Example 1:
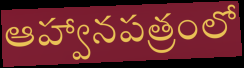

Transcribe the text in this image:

ఆహ్వానపత్రంలో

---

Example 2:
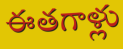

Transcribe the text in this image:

ఈతగాళ్లు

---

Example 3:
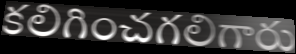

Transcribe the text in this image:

కలిగించగలిగారు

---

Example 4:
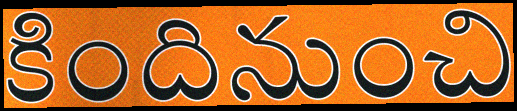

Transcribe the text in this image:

కిందినుంచి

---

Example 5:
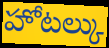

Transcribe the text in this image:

హోటల్కు